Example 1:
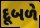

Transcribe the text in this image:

દૂબળે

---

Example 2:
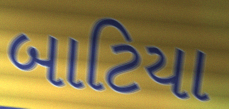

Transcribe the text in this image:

બાટિયા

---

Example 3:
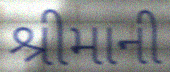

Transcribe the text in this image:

શ્રીમાની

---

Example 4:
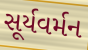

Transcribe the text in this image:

સૂર્યવર્મન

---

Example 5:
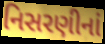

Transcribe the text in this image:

નિસરણીનાં